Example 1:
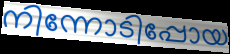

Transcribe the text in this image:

നിന്നോടിപ്പോയ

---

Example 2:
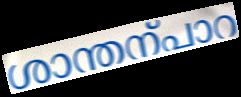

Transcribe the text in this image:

ശാന്തന്പാറ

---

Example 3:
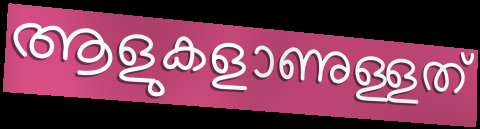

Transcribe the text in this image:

ആളുകളാണുള്ളത്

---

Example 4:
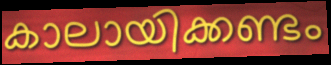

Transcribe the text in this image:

കാലായിക്കണ്ടം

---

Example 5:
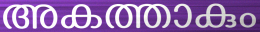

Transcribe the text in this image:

അകത്താകും